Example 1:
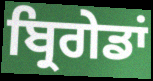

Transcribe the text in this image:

ਬ੍ਰਿਗੇਡਾਂ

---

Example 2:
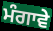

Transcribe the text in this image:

ਮੰਗਾਵੇ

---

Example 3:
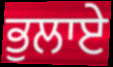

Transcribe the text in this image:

ਭੁਲਾਏ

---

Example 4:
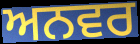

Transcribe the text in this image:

ਅਨਵਰ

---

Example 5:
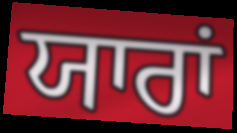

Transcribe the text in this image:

ਯਾਰਾਂ